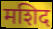
मशिद